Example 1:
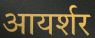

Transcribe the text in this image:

आयर्शर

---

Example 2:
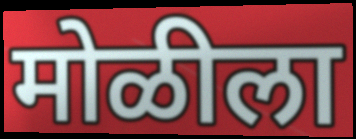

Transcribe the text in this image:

मोळीला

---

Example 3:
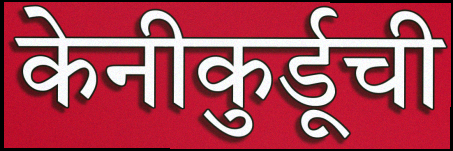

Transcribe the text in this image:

केनीकुर्डूची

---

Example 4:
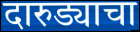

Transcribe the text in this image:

दारुड्याचा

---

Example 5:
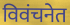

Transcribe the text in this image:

विवंचनेत